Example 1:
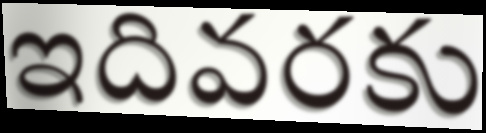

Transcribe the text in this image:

ఇదివరకు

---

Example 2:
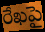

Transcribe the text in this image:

రేఖపై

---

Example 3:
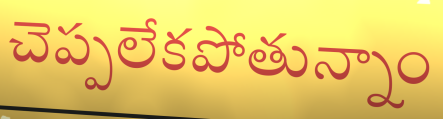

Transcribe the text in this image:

చెప్పలేకపోతున్నాం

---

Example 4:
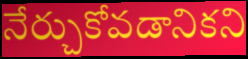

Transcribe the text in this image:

నేర్చుకోవడానికని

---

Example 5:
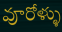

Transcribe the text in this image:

వూరోళ్ళు